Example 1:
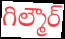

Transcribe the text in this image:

గిల్మౌర్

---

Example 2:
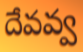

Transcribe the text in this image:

దేవవ్వ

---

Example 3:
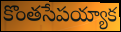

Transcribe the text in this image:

కొంతసేపయ్యాక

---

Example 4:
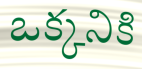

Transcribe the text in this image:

ఒక్కనికి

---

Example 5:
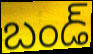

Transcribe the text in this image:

బండ్